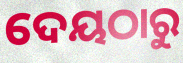
ଦେୟଠାରୁ